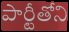
పార్టీతోని